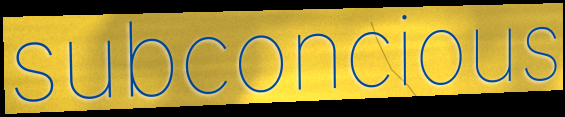
subconcious